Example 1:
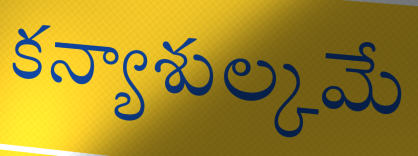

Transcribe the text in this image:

కన్యాశుల్కమే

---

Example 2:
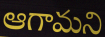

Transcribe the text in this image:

ఆగామని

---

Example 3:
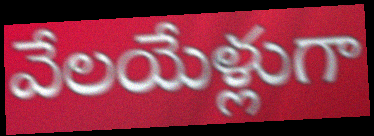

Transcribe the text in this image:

వేలయేళ్లుగా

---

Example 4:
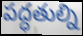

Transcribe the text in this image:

పద్ధతుల్ని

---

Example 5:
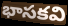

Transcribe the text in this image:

భాసకవి